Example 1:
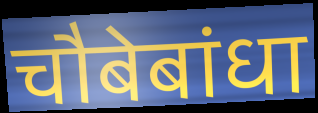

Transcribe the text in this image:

चौबेबांधा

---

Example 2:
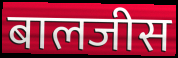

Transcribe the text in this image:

बालजीस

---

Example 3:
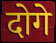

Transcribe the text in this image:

दोगे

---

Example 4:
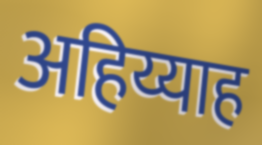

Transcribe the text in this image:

अहिय्याह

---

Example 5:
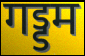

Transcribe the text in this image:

गड्डम